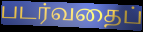
படர்வதைப்